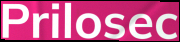
Prilosec